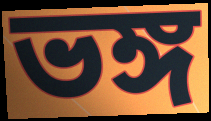
ভঙ্গ